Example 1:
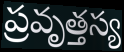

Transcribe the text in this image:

ప్రవృత్తస్య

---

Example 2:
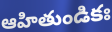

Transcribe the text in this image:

ఆహితుండికః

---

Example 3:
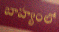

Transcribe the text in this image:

బాహ్యంలో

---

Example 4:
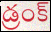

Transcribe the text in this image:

డ్రంక్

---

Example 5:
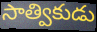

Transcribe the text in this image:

సాత్వికుడు